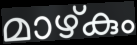
മാഴ്കും